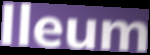
Ileum